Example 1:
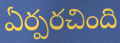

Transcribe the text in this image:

ఏర్పరచింది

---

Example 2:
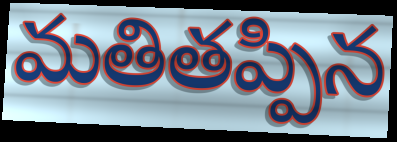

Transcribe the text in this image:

మతితప్పిన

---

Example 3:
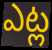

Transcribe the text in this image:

ఎట్ల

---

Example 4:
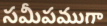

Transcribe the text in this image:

సమీపముగా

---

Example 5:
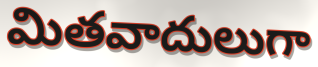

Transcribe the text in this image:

మితవాదులుగా